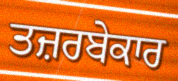
ਤਜ਼ਰਬੇਕਾਰ